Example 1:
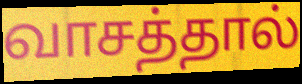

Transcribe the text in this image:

வாசத்தால்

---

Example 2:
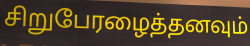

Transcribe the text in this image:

சிறுபேரழைத்தனவும்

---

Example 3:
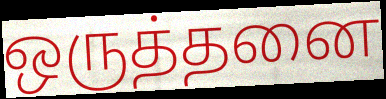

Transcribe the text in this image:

ஒருத்தனை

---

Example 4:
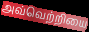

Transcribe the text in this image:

அவ்வெற்றியை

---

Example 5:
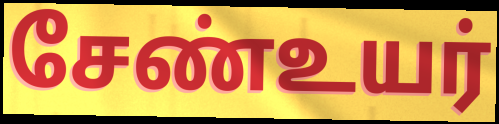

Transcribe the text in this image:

சேண்உயர்